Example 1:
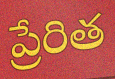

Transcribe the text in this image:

ప్రేరిత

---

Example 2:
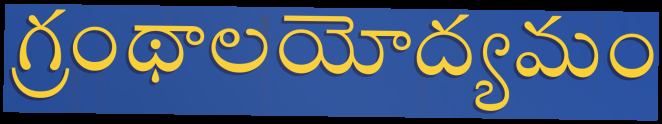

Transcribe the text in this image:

గ్రంథాలయోద్యమం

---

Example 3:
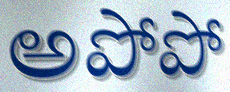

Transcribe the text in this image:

అపోపో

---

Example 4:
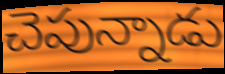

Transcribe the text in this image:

చెపున్నాడు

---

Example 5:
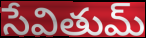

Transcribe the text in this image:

సేవితుమ్